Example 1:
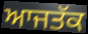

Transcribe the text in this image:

ਆਜਤੱਕ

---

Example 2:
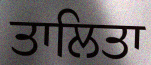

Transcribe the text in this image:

ਤਾਲਿਤਾ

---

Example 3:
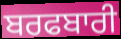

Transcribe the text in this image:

ਬਰਫਬਾਰੀ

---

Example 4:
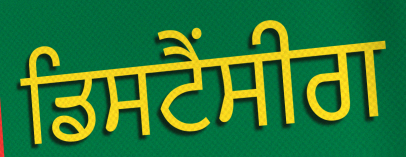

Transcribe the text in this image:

ਡਿਸਟੈਂਸੀਗ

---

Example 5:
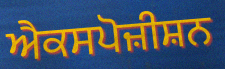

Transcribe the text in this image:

ਐਕਸਪੋਜ਼ੀਸ਼ਨ